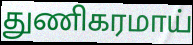
துணிகரமாய்